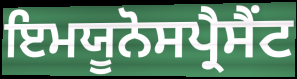
ਇਮਯੂਨੋਸਪ੍ਰੈਸੈਂਟ